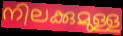
നിലക്കുമുള്ള